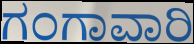
ಗಂಗಾವಾರಿ